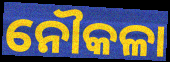
ନୌକଳା